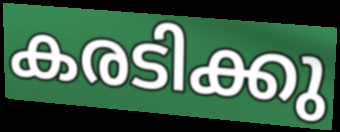
കരടിക്കു